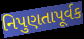
નિપુણતાપૂર્વક